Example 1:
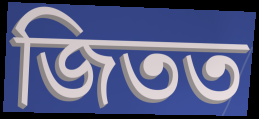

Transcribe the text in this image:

জিতত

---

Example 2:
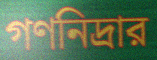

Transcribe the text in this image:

গণনিদ্রার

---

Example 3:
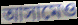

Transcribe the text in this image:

আসামেও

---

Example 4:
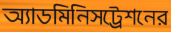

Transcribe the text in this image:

অ্যাডমিনিসট্রেশনের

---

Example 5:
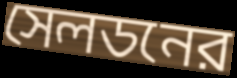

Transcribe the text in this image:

সেলডনের